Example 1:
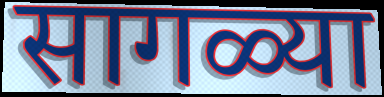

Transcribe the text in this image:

सागळ्या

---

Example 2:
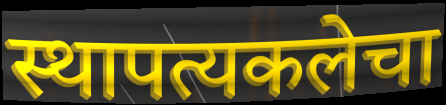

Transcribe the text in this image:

स्थापत्यकलेचा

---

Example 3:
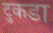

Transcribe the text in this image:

टुकडा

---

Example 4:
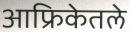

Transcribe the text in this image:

आफ्रिकेतले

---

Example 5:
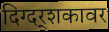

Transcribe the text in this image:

दिग्दर्शकावर